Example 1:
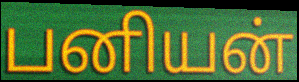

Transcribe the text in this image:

பனியன்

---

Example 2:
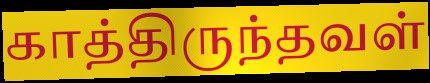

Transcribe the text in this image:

காத்திருந்தவள்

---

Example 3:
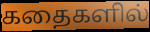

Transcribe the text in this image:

கதைகளில்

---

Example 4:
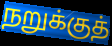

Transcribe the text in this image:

நறுக்குத்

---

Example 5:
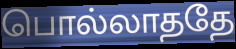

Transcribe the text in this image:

பொல்லாததே